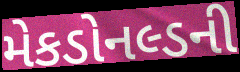
મેકડોનલ્ડની